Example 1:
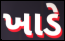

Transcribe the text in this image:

ખાડે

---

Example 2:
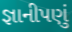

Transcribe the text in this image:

જ્ઞાનીપણું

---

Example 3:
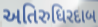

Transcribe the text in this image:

અતિરુધિરદાબ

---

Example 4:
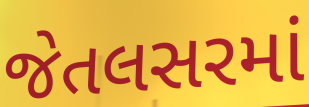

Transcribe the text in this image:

જેતલસરમાં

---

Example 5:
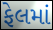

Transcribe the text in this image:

ફેલમાં